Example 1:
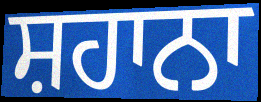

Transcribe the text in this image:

ਸ਼ਹਾਨਾ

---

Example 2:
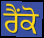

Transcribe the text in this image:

ਰੈਂਕੋ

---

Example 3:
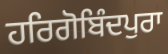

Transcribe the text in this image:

ਹਰਿਗੋਬਿੰਦਪੁਰਾ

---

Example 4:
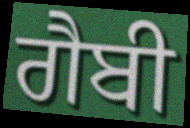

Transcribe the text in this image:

ਗੈਬੀ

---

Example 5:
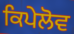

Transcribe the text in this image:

ਕਿਪੇਲੋਵ